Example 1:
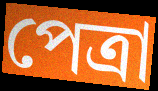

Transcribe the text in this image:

পেত্রা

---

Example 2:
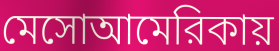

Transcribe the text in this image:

মেসোআমেরিকায়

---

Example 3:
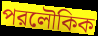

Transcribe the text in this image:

পরলৌকিক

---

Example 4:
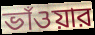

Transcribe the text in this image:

ভাঁওয়ার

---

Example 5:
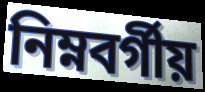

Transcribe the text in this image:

নিম্নবর্গীয়